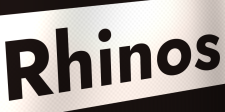
Rhinos